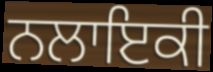
ਨਲਾਇਕੀ